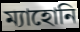
ম্যাহোনি